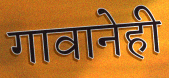
गावानेही